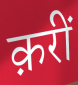
क़रीं